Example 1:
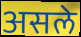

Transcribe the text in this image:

असले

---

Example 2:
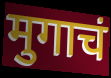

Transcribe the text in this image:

मुगाचं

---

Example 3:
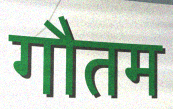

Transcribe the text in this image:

गौतम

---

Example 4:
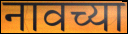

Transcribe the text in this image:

नावच्या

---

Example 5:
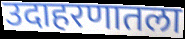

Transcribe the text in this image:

उदाहरणातला